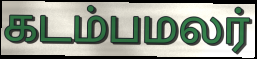
கடம்பமலர்